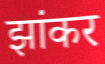
झांकर